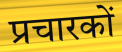
प्रचारकों